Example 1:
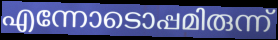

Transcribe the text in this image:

എന്നോടൊപ്പമിരുന്ന്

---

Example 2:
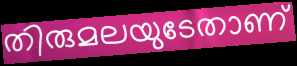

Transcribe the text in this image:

തിരുമലയുടേതാണ്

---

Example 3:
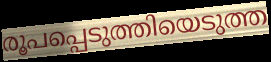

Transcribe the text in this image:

രൂപപ്പെടുത്തിയെടുത്ത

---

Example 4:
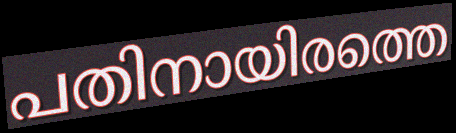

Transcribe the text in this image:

പതിനായിരത്തെ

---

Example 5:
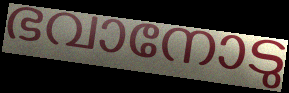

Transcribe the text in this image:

ഭവാനോടു